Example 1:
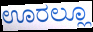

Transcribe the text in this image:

ಊರಲ್ಲೂ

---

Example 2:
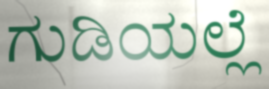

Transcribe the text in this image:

ಗುಡಿಯಲ್ಲೆ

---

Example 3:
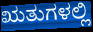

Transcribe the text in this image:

ಋತುಗಳಲ್ಲಿ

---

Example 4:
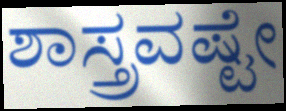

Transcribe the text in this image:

ಶಾಸ್ತ್ರವಷ್ಟೇ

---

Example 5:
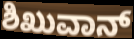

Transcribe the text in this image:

ಶಿಖುವಾನ್